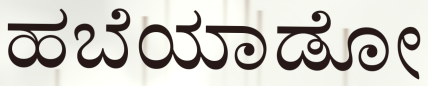
ಹಬೆಯಾಡೋ